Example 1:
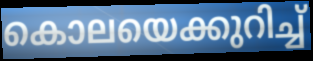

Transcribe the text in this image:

കൊലയെക്കുറിച്ച്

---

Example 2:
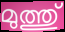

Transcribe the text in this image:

മുത്തു്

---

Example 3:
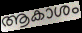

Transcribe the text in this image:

ആകാശം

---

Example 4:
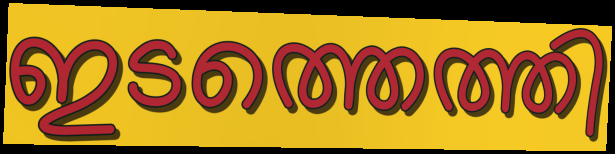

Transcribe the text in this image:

ഇടത്തെത്തി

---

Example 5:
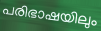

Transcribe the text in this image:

പരിഭാഷയിലും